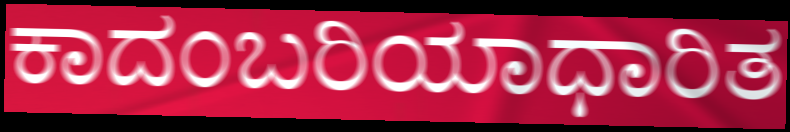
ಕಾದಂಬರಿಯಾಧಾರಿತ